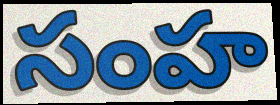
సంహ